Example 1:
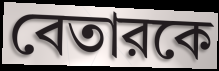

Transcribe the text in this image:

বেতারকে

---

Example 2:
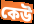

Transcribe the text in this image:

কেউ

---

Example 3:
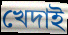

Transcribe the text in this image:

খেদাই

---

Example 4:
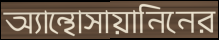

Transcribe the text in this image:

অ্যান্থোসায়ানিনের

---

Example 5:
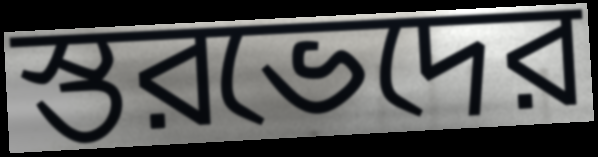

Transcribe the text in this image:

স্তরভেদের